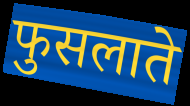
फुसलाते